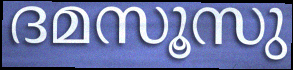
ദമസൂസു